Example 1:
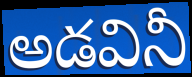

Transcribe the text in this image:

అడవినీ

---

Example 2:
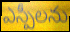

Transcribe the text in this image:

ఎస్పీలను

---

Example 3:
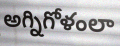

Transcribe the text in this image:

అగ్నిగోళంలా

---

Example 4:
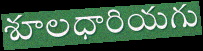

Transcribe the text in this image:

శూలధారియగు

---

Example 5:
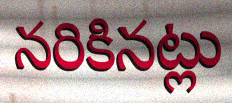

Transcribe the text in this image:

నరికినట్లు